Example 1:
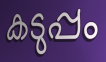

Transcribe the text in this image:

കടുപ്പം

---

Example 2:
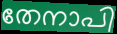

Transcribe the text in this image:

തേനാപി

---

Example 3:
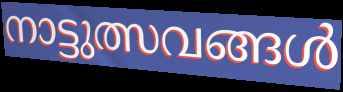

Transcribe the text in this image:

നാട്ടുത്സവങ്ങൾ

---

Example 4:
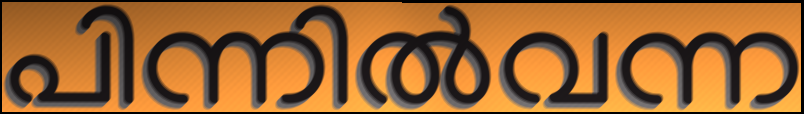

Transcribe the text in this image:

പിന്നിൽവന്ന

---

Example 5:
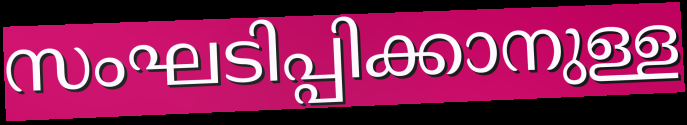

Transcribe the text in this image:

സംഘടിപ്പിക്കാനുള്ള